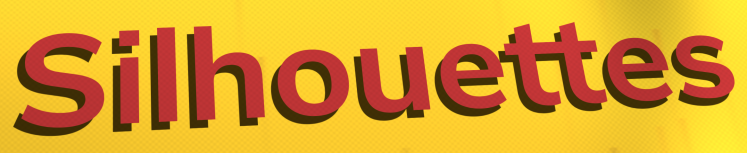
Silhouettes